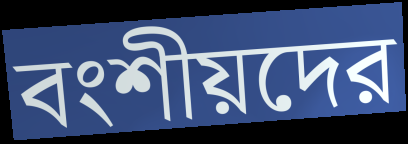
বংশীয়দের